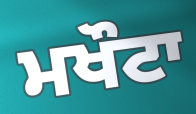
ਮਖੌਟਾ